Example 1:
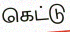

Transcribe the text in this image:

கெட்டு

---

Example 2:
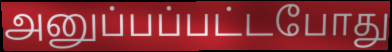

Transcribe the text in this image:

அனுப்பப்பட்டபோது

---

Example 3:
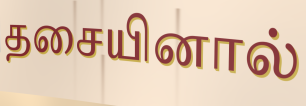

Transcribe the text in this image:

தசையினால்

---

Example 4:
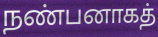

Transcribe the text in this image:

நண்பனாகத்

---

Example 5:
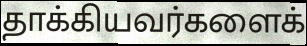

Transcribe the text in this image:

தாக்கியவர்களைக்